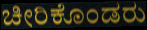
ಚೀರಿಕೊಂಡರು